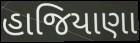
હાજિયાણા